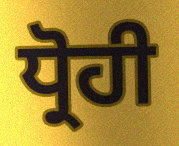
ਧ੍ਰੋਹੀ